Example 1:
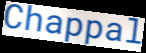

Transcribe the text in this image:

Chappal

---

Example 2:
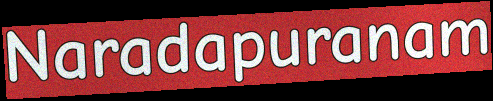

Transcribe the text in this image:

Naradapuranam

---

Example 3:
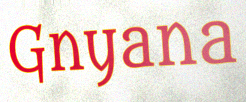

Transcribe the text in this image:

Gnyana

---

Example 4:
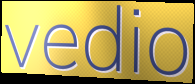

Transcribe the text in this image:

vedio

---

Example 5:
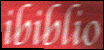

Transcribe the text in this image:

ibiblio